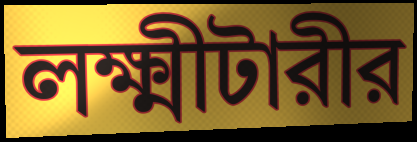
লক্ষ্মীটারীর